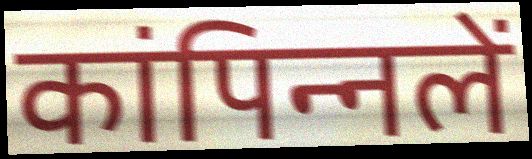
कांपिन्नलें